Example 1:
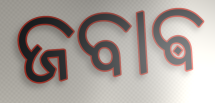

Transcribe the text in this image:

ଜବାଵ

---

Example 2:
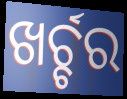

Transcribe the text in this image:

ଖର୍ଚ୍ଚର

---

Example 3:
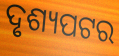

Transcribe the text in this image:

ଦୃଶ୍ୟପଟର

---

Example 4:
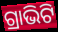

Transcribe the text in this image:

ଗ୍ରାଭିଟି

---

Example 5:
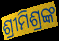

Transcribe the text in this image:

ଶ୍ରୀମିଶ୍ରଙ୍କ